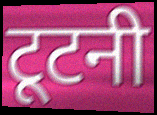
टूटनी